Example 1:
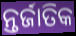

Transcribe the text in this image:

ନ୍ତର୍ଜାତିକ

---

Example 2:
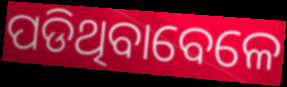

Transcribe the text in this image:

ପଡିଥିବାବେଳେ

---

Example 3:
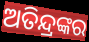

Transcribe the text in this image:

ଅତିନ୍ଦ୍ରଙ୍କର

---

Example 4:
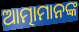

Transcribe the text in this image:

ଆତ୍ମାମାନଙ୍କ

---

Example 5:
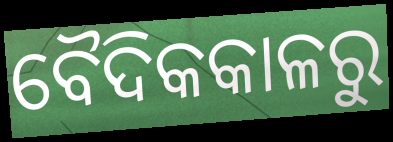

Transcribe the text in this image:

ବୈଦିକକାଳରୁ